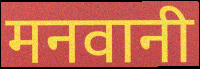
मनवानी